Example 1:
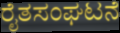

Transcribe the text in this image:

ರೈತಸಂಘಟನೆ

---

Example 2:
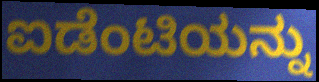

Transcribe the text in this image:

ಐಡೆಂಟಿಯನ್ನು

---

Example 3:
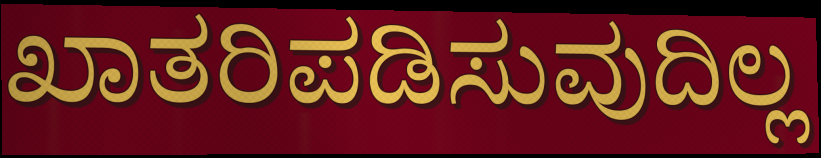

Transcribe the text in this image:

ಖಾತರಿಪಡಿಸುವುದಿಲ್ಲ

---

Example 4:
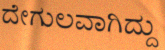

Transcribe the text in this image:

ದೇಗುಲವಾಗಿದ್ದು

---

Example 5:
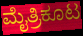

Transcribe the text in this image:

ಮೈತ್ರಿಕೂಟ